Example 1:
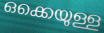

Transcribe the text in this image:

ഒക്കെയുള്ള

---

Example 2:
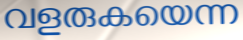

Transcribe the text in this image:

വളരുകയെന്ന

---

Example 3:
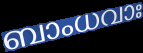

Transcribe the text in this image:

ബാംധവാഃ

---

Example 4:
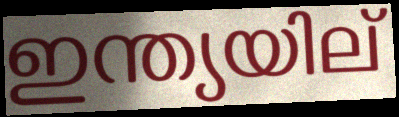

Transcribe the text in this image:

ഇന്ത്യയില്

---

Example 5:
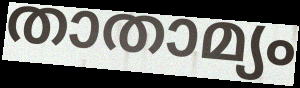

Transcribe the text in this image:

താതാമ്യം